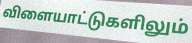
விளையாட்டுகளிலும்